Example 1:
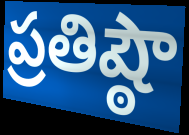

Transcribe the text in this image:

ప్రతిష్ఠౌ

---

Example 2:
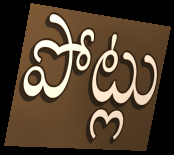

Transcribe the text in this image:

పోట్లు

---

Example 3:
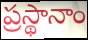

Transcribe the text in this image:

ప్రస్థానాం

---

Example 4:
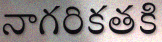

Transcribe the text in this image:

నాగరికతకి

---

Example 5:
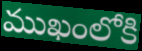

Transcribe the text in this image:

ముఖంలోకి